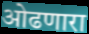
ओढणारा